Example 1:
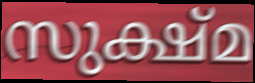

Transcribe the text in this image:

സുക്ഷ്മ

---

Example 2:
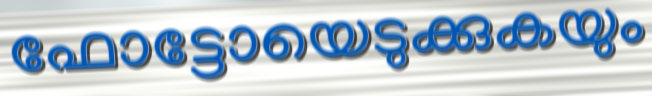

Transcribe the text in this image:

ഫോട്ടോയെടുക്കുകയും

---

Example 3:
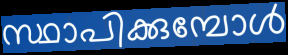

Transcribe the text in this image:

സ്ഥാപിക്കുമ്പോൾ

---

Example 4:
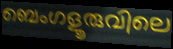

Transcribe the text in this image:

ബെംഗളൂരുവിലെ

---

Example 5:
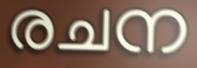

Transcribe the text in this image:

രചന